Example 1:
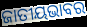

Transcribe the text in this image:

ଜାତୀୟଭାବର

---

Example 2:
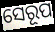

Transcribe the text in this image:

ସେରୂପ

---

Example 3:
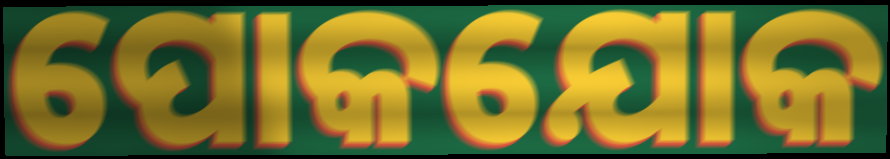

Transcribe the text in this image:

ପୋକଯୋକ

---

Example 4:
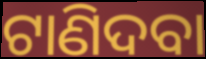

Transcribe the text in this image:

ଟାଣିଦବା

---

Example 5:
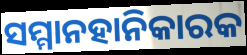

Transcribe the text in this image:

ସମ୍ମାନହାନିକାରକ